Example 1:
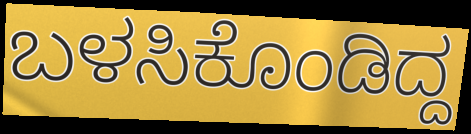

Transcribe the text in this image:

ಬಳಸಿಕೊಂಡಿದ್ದ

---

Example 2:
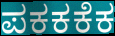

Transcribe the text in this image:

ಪಕಕಕೆಕ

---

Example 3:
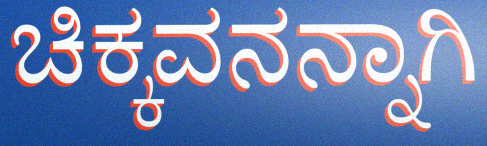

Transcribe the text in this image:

ಚಿಕ್ಕವನನ್ನಾಗಿ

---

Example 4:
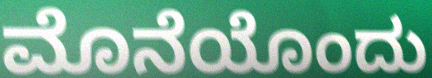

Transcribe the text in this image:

ಮೊನೆಯೊಂದು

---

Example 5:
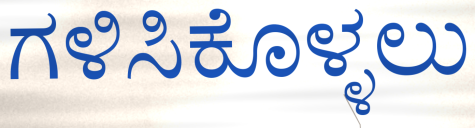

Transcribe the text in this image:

ಗಳಿಸಿಕೊಳ್ಳಲು